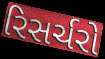
રિસર્ચરો